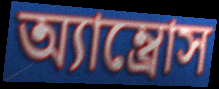
অ্যাম্ব্রোস